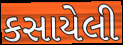
કસાયેલી